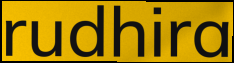
rudhira